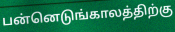
பன்னெடுங்காலத்திற்கு